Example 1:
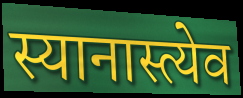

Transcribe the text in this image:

स्यानास्त्येव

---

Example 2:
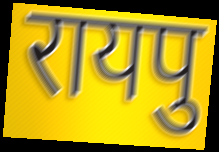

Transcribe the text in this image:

रायपु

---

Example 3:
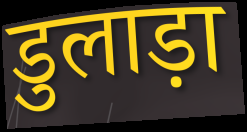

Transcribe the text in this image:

डुलाड़ा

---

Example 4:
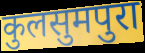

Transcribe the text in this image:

कुलसुमपुरा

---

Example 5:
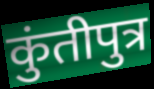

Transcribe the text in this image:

कुंतीपुत्र